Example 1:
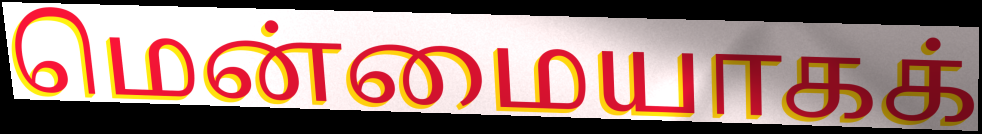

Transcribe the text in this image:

மென்மையாகக்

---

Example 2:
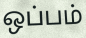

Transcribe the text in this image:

ஒப்பம்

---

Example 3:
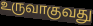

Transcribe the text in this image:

உருவாகுவது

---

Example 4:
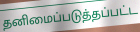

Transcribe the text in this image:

தனிமைப்படுத்தப்பட்ட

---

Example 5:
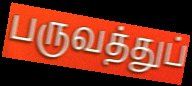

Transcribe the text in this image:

பருவத்துப்